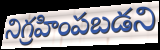
నిగ్రహింపబడని